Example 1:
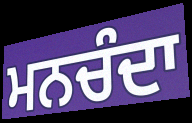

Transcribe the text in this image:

ਮਨਚੰਦਾ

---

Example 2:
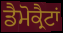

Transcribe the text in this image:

ਡੈਮੋਕ੍ਰੈਟਾਂ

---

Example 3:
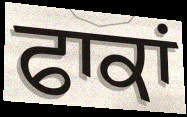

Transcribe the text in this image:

ਫਾਕਾਂ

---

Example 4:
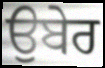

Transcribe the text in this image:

ਉਬੇਰ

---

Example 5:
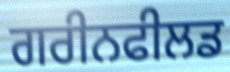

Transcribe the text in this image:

ਗਰੀਨਫੀਲਡ